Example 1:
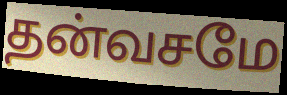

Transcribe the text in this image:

தன்வசமே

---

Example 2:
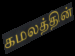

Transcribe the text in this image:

கமலத்தின்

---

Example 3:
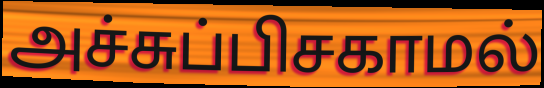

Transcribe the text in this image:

அச்சுப்பிசகாமல்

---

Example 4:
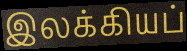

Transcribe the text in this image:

இலக்கியப்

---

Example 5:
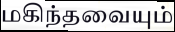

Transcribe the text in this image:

மகிந்தவையும்